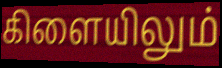
கிளையிலும்